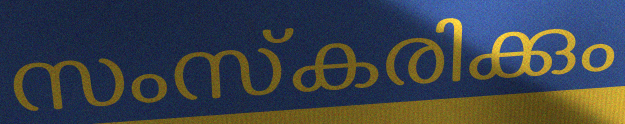
സംസ്‌കരിക്കും